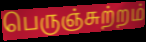
பெருஞ்சுற்றம்